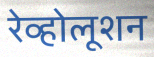
रेव्होलूशन